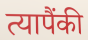
त्यापैंकी